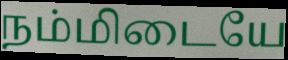
நம்மிடையே